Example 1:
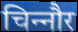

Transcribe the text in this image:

चिन्‍नौर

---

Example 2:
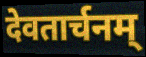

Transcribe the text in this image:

देवतार्चनम्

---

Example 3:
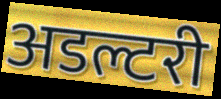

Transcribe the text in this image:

अडल्टरी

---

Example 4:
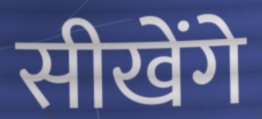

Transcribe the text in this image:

सीखेंगे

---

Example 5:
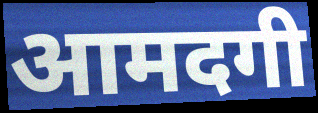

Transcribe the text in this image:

आमदगी